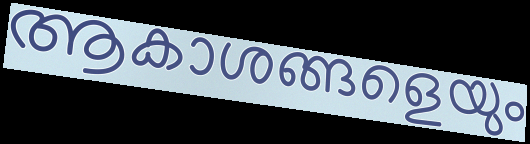
ആകാശങ്ങളെയും